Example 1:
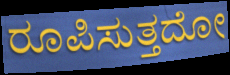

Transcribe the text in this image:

ರೂಪಿಸುತ್ತದೋ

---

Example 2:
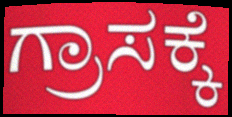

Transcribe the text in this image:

ಗ್ರಾಸಕ್ಕೆ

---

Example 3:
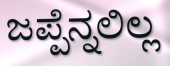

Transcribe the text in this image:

ಜಪ್ಪೆನ್ನಲಿಲ್ಲ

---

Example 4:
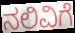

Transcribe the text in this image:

ನಲಿವಿಗೆ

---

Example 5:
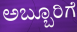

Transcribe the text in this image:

ಅಬ್ಬೂರಿಗೆ